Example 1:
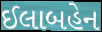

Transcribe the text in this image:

ઈલાબહેન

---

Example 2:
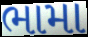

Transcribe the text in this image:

ભામા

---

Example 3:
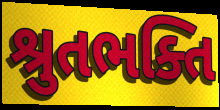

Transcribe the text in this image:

શ્રુતભક્તિ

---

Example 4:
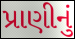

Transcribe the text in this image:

પ્રાણીનું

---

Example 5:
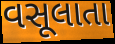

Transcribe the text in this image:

વસૂલાતા